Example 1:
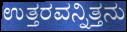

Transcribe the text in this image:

ಉತ್ತರವನ್ನಿತ್ತನು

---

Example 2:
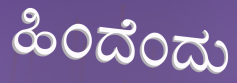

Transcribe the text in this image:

ಹಿಂದೆಂದು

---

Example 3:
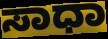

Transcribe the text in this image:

ಸಾಧಾ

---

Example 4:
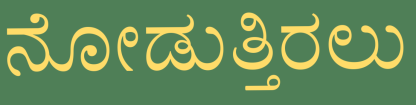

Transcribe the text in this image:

ನೋಡುತ್ತಿರಲು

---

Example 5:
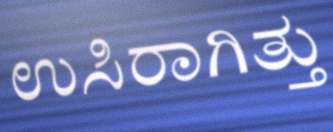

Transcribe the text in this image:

ಉಸಿರಾಗಿತ್ತು